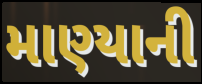
માણ્યાની